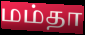
மம்தா